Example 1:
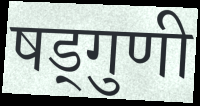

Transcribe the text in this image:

षड्गुणी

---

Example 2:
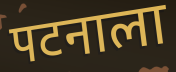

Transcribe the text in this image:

पटनाला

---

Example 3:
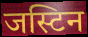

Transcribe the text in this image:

जस्टिन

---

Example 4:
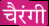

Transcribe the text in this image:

चैरंगी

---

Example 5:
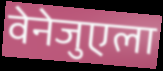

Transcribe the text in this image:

वेनेजुएला